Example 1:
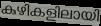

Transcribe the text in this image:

കുഴികളിലായി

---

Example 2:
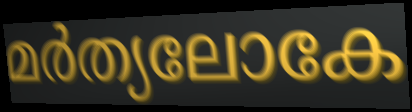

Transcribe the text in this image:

മർത്യലോകേ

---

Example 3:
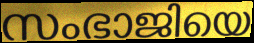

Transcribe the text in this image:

സംഭാജിയെ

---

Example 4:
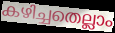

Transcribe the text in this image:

കഴിച്ചതെല്ലാം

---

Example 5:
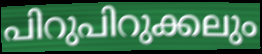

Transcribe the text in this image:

പിറുപിറുക്കലും